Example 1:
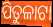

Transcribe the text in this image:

ପିତୁଳାଟା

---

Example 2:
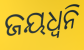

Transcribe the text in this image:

ଜୟଧ୍ଵନି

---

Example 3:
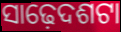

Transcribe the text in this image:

ସାଢ଼େଦଶଟା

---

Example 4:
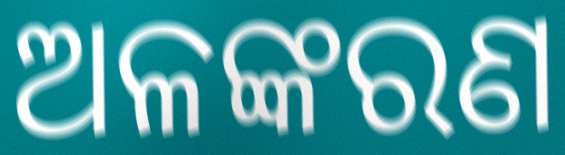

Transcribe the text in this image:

ଅଳଙ୍କରଣ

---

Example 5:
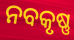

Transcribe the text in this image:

ନବକୃଷ୍ଣ